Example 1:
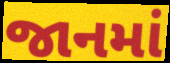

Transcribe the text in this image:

જાનમાં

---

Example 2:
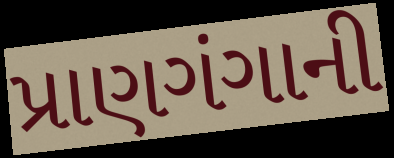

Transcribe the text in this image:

પ્રાણગંગાની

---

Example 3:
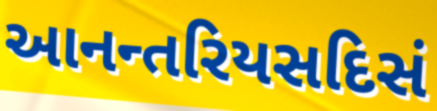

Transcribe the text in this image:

આનન્તરિયસદિસં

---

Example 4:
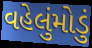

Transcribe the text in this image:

વહેલુંમોડું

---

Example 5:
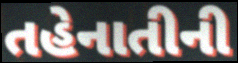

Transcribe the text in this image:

તહેનાતીની